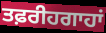
ਤਫ਼ਰੀਹਗਾਹਾਂ